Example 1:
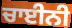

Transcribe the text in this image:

ਚਾਈਨੀ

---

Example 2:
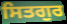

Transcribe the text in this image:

ਸਿਤਗੁਰ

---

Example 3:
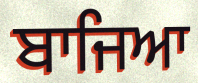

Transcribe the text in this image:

ਬਾਜਿਆ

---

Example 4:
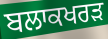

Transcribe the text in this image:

ਬਲਾਕਖਰੜ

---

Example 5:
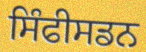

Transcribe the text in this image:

ਸਿੰਫੀਸਡਨ